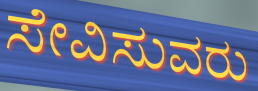
ಸೇವಿಸುವರು